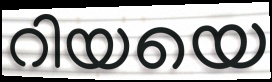
റിയയെ